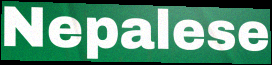
Nepalese